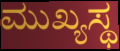
ಮುಖ್ಯಸ್ಥ